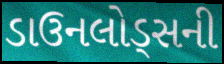
ડાઉનલોડ્સની